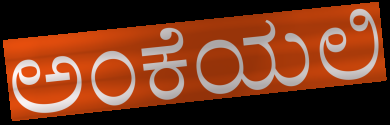
ಅಂಕೆಯಲಿ